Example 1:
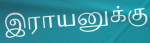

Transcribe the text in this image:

இராயனுக்கு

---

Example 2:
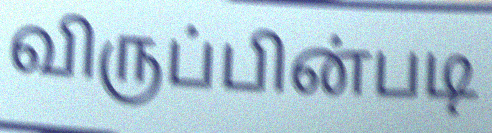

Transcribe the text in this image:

விருப்பின்படி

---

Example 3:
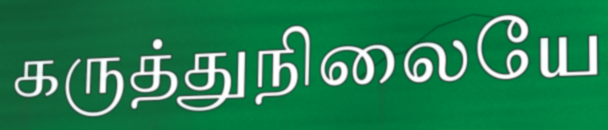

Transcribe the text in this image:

கருத்துநிலையே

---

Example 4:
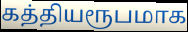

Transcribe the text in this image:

கத்தியரூபமாக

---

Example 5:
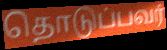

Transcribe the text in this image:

தொடுப்பவர்